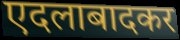
एदलाबादकर